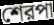
শেরপা